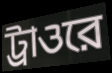
ট্রাওরে